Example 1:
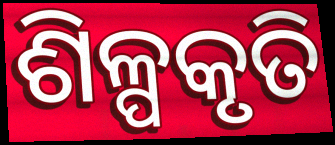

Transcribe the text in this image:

ଶିଳ୍ପକୃତି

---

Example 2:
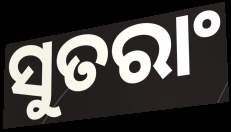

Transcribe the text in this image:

ସୁତରାଂ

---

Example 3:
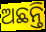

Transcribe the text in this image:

ଅଛନ୍ତି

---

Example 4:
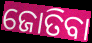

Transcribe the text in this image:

ଜୋତିବା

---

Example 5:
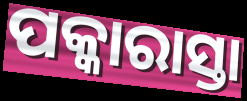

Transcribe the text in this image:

ପକ୍କାରାସ୍ତା